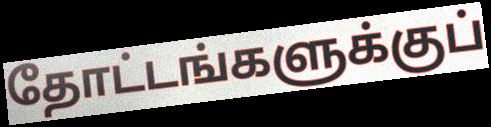
தோட்டங்களுக்குப்